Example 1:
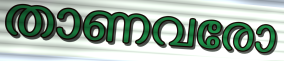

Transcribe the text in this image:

താണവരോ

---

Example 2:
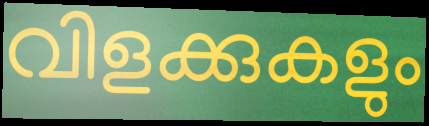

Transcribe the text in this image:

വിളക്കുകളും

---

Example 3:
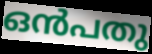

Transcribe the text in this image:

ഒൻപതു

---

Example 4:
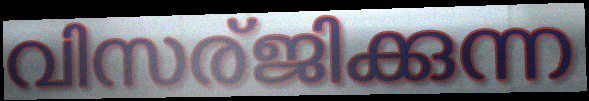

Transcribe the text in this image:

വിസര്ജിക്കുന്ന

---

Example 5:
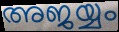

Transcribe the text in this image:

അജയ്യം